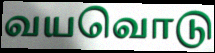
வயவொடு